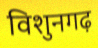
विशुनगढ़